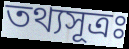
তথ্যসূত্রঃ